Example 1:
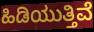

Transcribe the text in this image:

ಹಿಡಿಯುತ್ತಿವೆ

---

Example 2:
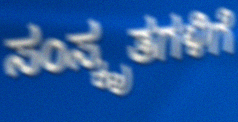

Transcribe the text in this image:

ಸಂಸ್ಕೃತಗಳಿಗೆ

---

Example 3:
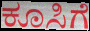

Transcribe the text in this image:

ಕೂಸಿಗೆ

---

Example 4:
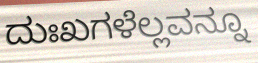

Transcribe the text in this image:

ದುಃಖಗಳೆಲ್ಲವನ್ನೂ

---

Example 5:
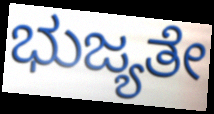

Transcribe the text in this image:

ಭುಜ್ಯತೇ